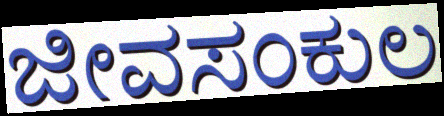
ಜೀವಸಂಕುಲ